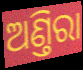
ଅଣ୍ତିରା